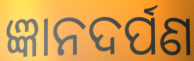
ଜ୍ଞାନଦର୍ପଣ